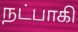
நட்பாகி